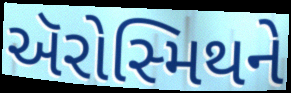
ઍરોસ્મિથને